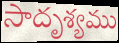
సాదృశ్యము